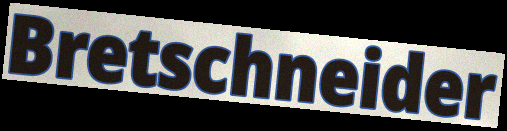
Bretschneider